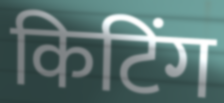
किटिंग